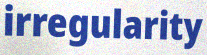
irregularity